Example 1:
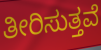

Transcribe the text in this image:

ತೀರಿಸುತ್ತವೆ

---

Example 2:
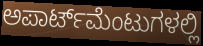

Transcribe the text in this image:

ಅಪಾರ್ಟ್‌ಮೆಂಟುಗಳಲ್ಲಿ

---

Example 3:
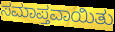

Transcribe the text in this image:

ಸಮಾಪ್ತವಾಯಿತು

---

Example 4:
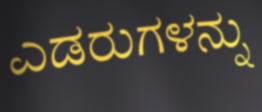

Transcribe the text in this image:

ಎಡರುಗಳನ್ನು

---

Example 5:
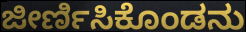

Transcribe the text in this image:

ಜೀರ್ಣಿಸಿಕೊಂಡನು